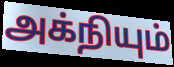
அக்நியும்